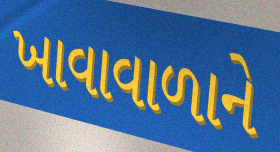
ખાવાવાળાને